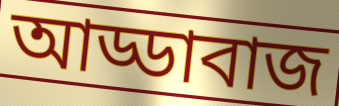
আড্ডাবাজ